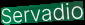
Servadio